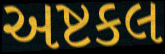
અષ્ટકલ